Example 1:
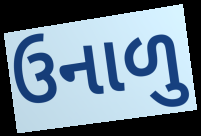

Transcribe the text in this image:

ઉનાળુ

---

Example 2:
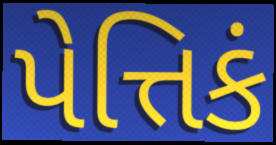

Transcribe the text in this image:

પેત્તિકં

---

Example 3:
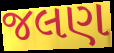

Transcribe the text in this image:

જલણ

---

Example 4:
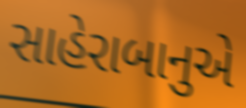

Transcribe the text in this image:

સાહેરાબાનુએ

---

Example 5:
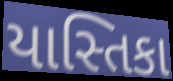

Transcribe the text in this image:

યાસ્તિકા